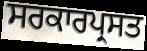
ਸਰਕਾਰਪ੍ਰਸਤ